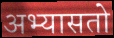
अभ्यासतो